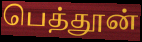
பெத்தூன்